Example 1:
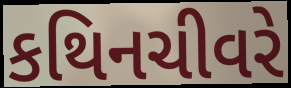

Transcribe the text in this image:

કથિનચીવરે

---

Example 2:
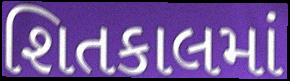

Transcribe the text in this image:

શિતકાલમાં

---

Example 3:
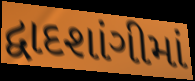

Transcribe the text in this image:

દ્વાદશાંગીમાં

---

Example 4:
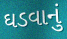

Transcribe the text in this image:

ઘડવાનું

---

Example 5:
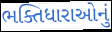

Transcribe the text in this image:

ભક્તિધારાઓનું